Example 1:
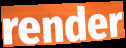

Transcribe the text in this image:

render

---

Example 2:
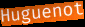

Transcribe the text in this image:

Huguenot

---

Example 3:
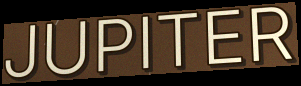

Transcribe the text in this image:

JUPITER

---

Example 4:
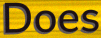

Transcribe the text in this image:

Does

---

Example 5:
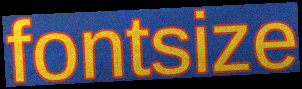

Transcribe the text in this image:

fontsize